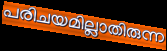
പരിചയമില്ലാതിരുന്ന